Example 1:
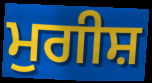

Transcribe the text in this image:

ਮੁਗੀਸ਼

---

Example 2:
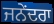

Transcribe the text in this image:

ਜਨੇਂਦਰਾ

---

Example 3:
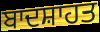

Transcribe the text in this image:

ਬਾਦਸ਼ਾਹਤ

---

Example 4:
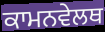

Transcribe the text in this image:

ਕਾਮਨਵੇਲਥ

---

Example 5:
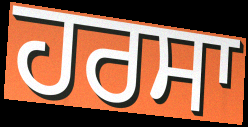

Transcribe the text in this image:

ਹਰਸਾ